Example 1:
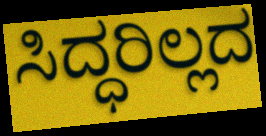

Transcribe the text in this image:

ಸಿದ್ಧರಿಲ್ಲದ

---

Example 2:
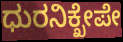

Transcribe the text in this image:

ಧುರನಿಕ್ಖೇಪೇ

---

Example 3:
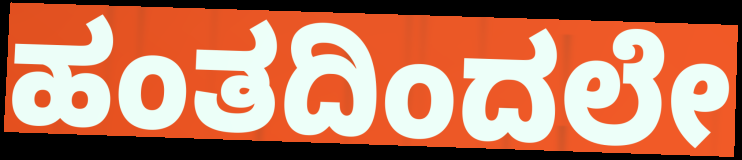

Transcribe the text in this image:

ಹಂತದಿಂದಲೇ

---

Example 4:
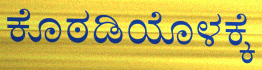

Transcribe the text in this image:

ಕೊಠಡಿಯೊಳಕ್ಕೆ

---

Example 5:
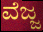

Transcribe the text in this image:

ವೆಜ್ಜ